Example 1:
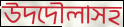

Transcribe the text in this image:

উদদৌলাসহ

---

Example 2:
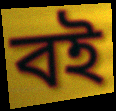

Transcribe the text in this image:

বই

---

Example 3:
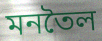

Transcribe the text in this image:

মনতৈল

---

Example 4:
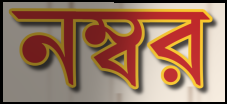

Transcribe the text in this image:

নম্বর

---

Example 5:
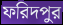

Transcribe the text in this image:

ফরিদপুর